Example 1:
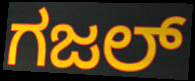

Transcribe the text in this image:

ಗಜಲ್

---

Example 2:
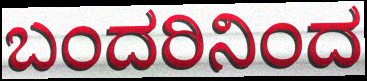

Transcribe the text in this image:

ಬಂದರಿನಿಂದ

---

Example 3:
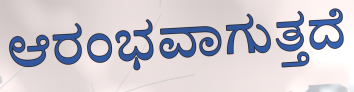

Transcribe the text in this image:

ಆರಂಭವಾಗುತ್ತದೆ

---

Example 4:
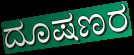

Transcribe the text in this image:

ದೂಷಣರ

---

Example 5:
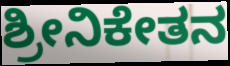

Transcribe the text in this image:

ಶ್ರೀನಿಕೇತನ